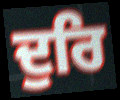
ਦੁਰਿ